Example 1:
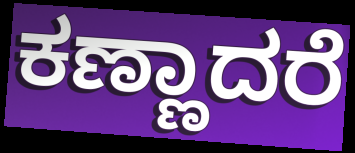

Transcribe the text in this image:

ಕಣ್ಣಾದರೆ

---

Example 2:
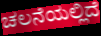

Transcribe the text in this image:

ಚಲನೆಯಲ್ಲಿದೆ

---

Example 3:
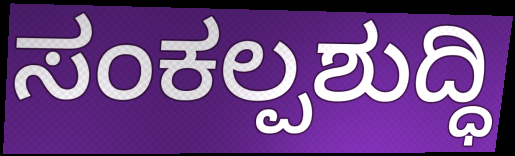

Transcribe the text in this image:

ಸಂಕಲ್ಪಶುದ್ಧಿ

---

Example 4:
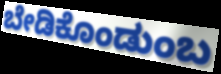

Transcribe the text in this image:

ಬೇಡಿಕೊಂಡುಂಬ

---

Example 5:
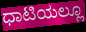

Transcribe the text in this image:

ಧಾಟಿಯಲ್ಲೂ